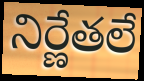
నిర్ణేతలే